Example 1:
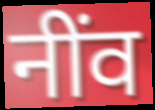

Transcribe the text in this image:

नींव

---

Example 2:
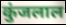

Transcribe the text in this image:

कुंजलाल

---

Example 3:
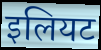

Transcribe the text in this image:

इलियट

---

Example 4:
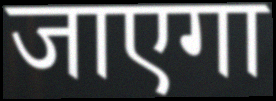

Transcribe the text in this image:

जाएगा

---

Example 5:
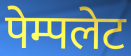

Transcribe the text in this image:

पेम्पलेट